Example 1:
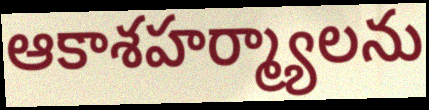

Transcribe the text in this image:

ఆకాశహర్మ్యాలను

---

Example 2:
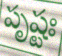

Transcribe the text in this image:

పృష్టః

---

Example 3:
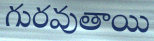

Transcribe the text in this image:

గురవుతాయి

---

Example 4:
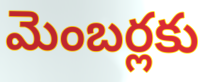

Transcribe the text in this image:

మెంబర్లకు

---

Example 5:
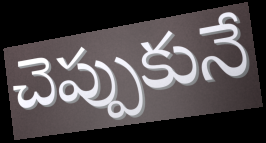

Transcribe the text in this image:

చెప్పుకునే